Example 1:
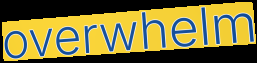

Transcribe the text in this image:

overwhelm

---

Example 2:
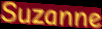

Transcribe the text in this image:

Suzanne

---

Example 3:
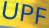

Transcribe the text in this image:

UPF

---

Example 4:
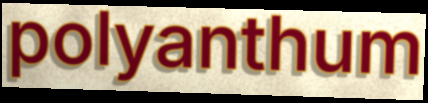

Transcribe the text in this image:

polyanthum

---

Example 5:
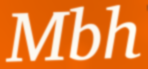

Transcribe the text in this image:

Mbh